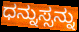
ಧನ್ನುಸ್ಸನ್ನು